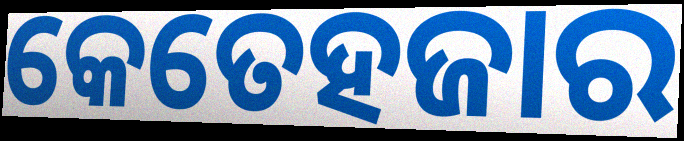
କେତେହଜାର